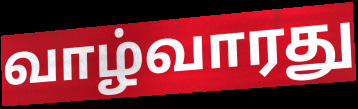
வாழ்வாரது